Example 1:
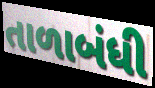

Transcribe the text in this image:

તાળાબંધી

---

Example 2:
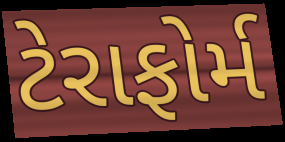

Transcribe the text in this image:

ટેરાફોર્મ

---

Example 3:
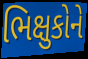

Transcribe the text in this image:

ભિક્ષુકોને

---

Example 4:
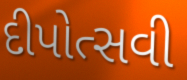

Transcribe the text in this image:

દીપોત્સવી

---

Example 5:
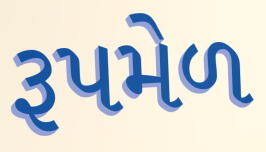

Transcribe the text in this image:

રૂપમેળ